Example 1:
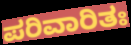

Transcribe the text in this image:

ಪರಿವಾರಿತಃ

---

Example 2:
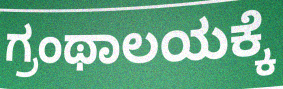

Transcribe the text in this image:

ಗ್ರಂಥಾಲಯಕ್ಕೆ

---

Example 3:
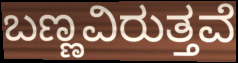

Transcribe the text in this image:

ಬಣ್ಣವಿರುತ್ತವೆ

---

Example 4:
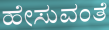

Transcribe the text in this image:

ಹೇಸುವಂತೆ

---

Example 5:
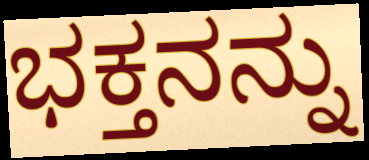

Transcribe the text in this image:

ಭಕ್ತನನ್ನು